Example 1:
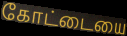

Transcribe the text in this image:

கோட்டையை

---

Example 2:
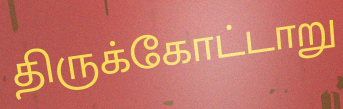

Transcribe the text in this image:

திருக்கோட்டாறு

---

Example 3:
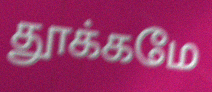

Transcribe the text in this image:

தூக்கமே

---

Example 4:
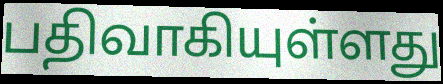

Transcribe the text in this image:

பதிவாகியுள்ளது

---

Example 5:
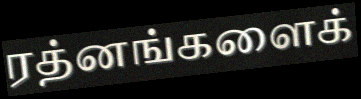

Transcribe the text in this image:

ரத்னங்களைக்